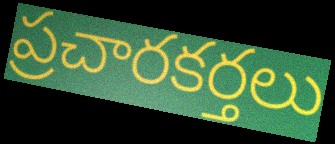
ప్రచారకర్తలు